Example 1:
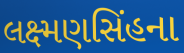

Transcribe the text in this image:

લક્ષ્મણસિંહના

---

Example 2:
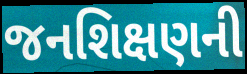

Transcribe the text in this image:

જનશિક્ષણની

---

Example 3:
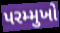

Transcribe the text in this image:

પરમ્મુખો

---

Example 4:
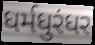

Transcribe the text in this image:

ધર્મધુરંધર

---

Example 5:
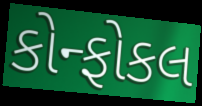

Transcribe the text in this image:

કોન્ફોકલ